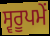
ਸ੍ਵਰੂਪਮੇਂ